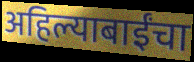
अहिल्याबाईंचा